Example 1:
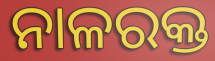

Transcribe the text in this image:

ନାଳରକ୍ତ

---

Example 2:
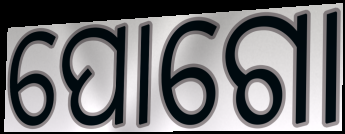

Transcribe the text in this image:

ପୋଗୋ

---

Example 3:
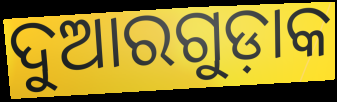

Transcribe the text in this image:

ଦୁଆରଗୁଡ଼ାକ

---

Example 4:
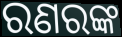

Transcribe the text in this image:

ରଣରଙ୍କ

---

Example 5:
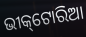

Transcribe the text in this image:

ଭୀକ୍‌ଟୋରିଆ